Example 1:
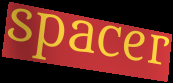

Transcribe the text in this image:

spacer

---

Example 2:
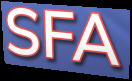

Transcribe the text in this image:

SFA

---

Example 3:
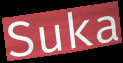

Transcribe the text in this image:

Suka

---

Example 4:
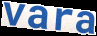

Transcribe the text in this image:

vara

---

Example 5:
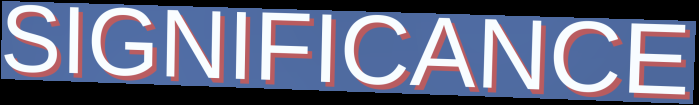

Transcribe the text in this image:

SIGNIFICANCE